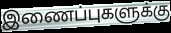
இணைப்புகளுக்கு